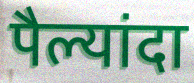
पैल्यांदा